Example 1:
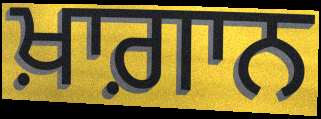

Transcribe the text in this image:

ਖ਼ਾਗ਼ਾਨ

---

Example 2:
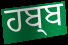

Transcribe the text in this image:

ਹਬ੍ਬ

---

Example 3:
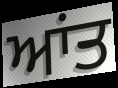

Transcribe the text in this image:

ਆਂਤ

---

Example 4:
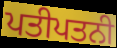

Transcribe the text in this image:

ਪਤੀਪਤਨੀ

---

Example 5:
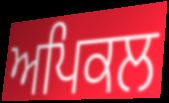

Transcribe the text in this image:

ਅਪਿਕਲ